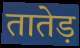
तातेड़